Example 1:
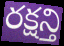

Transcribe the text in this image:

రక్షన్తి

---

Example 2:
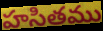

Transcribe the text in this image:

హసితము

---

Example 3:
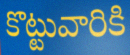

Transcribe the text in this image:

కొట్టువారికి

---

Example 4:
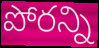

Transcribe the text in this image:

పోరన్ని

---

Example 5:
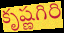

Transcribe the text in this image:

కృష్ణగిరి